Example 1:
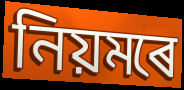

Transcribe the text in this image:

নিয়মৰে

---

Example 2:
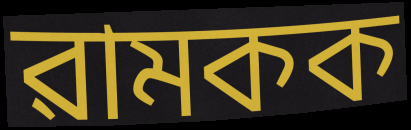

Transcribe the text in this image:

ৱামকক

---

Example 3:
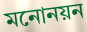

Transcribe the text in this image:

মনোনয়ন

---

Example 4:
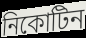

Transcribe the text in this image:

নিকোটিন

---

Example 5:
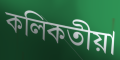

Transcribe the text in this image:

কলিকতীয়া